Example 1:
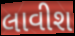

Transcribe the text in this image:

લાવીશ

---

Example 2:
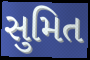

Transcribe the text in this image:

સુમિત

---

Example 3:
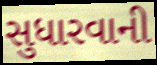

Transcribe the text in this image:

સુધારવાની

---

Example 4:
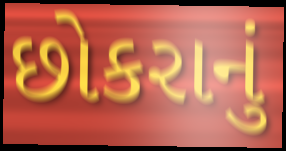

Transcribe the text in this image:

છોકરાનું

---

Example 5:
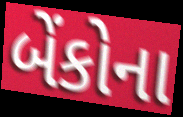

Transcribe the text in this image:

બેંકોના